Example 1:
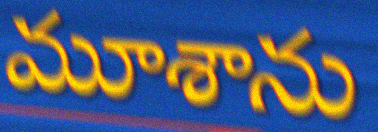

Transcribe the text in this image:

మూశాను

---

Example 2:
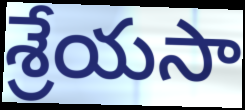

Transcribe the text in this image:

శ్రేయసా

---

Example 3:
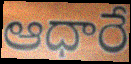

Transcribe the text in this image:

ఆధారే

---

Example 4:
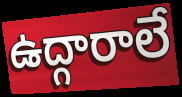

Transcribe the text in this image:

ఉద్గారాలే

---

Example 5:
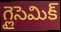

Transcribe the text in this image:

గ్లైసెమిక్